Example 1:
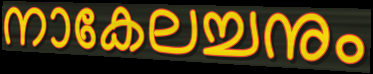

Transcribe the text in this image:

നാകേലച്ചനും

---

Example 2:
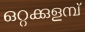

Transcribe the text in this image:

ഒറ്റക്കുളമ്പ്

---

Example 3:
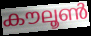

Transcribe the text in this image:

കൗലൂൺ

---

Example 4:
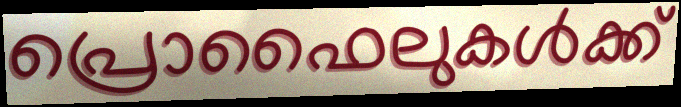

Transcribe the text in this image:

പ്രൊഫൈലുകൾക്ക്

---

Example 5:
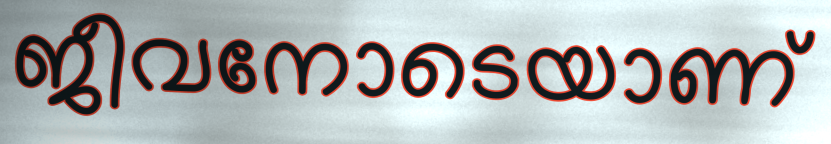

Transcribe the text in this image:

ജീവനോടെയാണ്